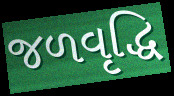
જળવૃદ્ધિ